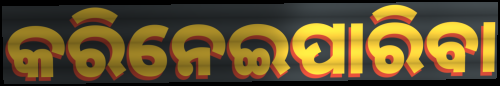
କରିନେଇପାରିବା